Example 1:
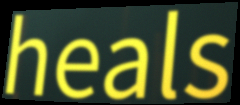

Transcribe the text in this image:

heals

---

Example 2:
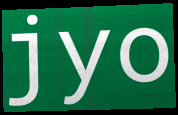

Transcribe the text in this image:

jyo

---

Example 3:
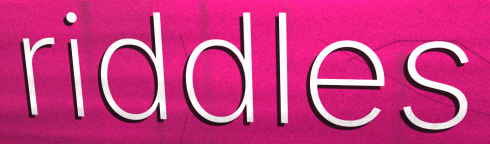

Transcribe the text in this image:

riddles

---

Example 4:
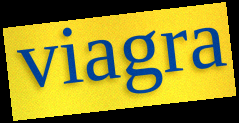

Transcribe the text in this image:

viagra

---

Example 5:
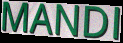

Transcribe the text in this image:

MANDI